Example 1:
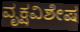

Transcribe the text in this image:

ವೃಕ್ಷವಿಶೇಷ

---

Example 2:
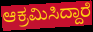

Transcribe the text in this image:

ಆಕ್ರಮಿಸಿದ್ದಾರೆ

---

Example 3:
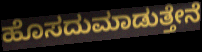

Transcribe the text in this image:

ಹೊಸದುಮಾಡುತ್ತೇನೆ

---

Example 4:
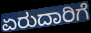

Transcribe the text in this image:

ಏರುದಾರಿಗೆ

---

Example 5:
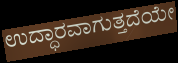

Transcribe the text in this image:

ಉದ್ಧಾರವಾಗುತ್ತದೆಯೇ